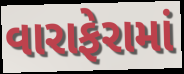
વારાફેરામાં